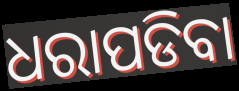
ଧରାପଡିବା